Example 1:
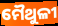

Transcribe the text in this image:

ମୈଥୁଳୀ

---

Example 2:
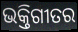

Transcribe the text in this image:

ଭକ୍ତିଗୀତର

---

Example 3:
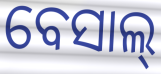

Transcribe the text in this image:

ବେସାଲ୍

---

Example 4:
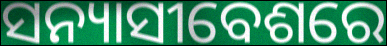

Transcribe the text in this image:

ସନ୍ୟାସୀବେଶରେ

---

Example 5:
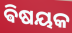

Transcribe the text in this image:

ଵିଷୟକ